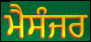
ਮੈਸੰਜਰ